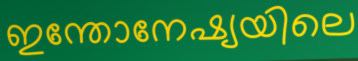
ഇന്തോനേഷ്യയിലെ